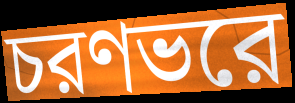
চরণভরে